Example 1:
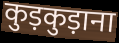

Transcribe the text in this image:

कुड़कुड़ाना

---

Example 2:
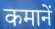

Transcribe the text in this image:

कमानें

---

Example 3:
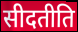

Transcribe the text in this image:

सीदतीति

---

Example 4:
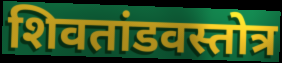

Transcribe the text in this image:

शिवतांडवस्तोत्र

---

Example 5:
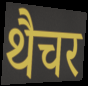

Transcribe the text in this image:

थैचर